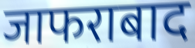
जाफराबाद